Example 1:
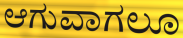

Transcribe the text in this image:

ಆಗುವಾಗಲೂ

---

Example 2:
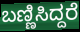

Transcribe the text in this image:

ಬಣ್ಣಿಸಿದ್ದರೆ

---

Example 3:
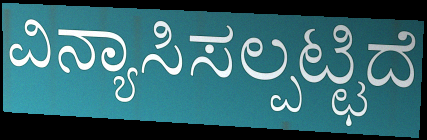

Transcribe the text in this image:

ವಿನ್ಯಾಸಿಸಲ್ಪಟ್ಟಿದೆ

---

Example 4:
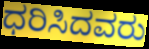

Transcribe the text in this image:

ಧರಿಸಿದವರು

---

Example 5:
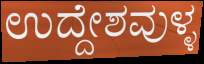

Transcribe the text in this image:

ಉದ್ದೇಶವುಳ್ಳ